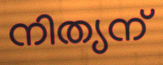
നിത്യന്